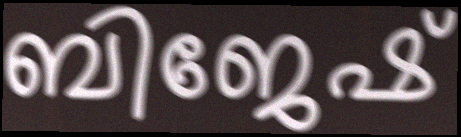
ബിജേഷ്